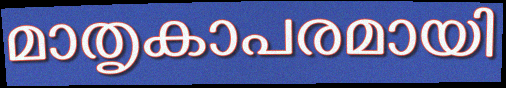
മാതൃകാപരമായി